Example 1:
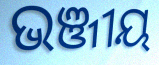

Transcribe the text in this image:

ଭଞ୍ଜୀୟ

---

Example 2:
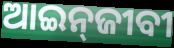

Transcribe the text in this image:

ଆଇନ୍‌ଜୀବୀ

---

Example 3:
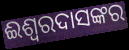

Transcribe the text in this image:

ଈଶ୍ଵରଦାସଙ୍କର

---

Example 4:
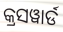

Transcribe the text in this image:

କ୍ରସୱାର୍ଡ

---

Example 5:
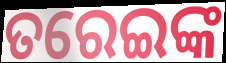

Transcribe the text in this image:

ତରେଇଙ୍କ